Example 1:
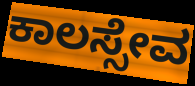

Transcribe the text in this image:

ಕಾಲಸ್ಸೇವ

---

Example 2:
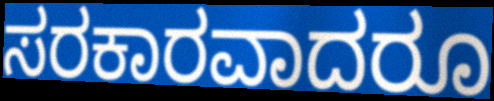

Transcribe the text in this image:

ಸರಕಾರವಾದರೂ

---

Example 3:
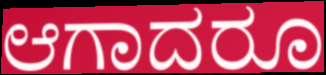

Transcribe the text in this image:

ಆಗಾದರೂ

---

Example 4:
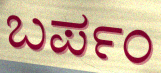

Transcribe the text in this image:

ಬರ್ಪಂ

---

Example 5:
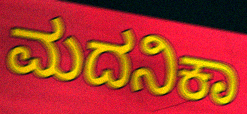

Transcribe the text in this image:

ಮದನಿಕಾ